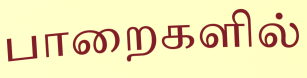
பாறைகளில்